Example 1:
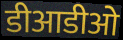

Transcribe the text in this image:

डीआडीओ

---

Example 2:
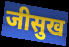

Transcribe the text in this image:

जीसुख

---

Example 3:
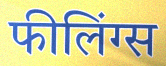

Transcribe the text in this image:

फीलिंग्स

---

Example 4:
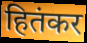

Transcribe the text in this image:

हितंकर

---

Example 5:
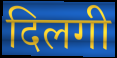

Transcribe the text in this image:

दिलगी